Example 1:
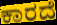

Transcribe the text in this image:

ಕಾರದೆ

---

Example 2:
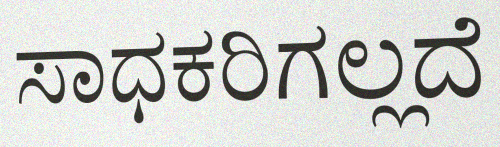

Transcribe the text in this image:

ಸಾಧಕರಿಗಲ್ಲದೆ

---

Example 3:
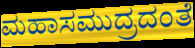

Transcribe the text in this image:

ಮಹಾಸಮುದ್ರದಂತೆ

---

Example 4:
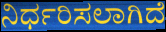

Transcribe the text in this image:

ನಿರ್ಧರಿಸಲಾಗಿದೆ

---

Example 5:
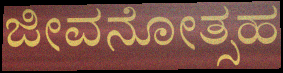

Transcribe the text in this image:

ಜೀವನೋತ್ಸಹ